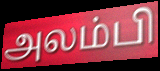
அலம்பி